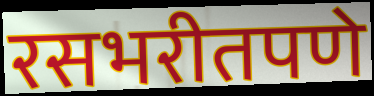
रसभरीतपणे